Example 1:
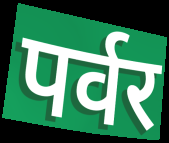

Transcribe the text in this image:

पर्वर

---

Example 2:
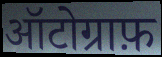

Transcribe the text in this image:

ऑटोग्राफ़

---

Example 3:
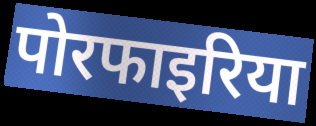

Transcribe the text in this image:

पोरफाइरिया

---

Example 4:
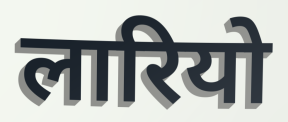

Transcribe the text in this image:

लारियो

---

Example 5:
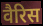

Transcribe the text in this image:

वैरिस